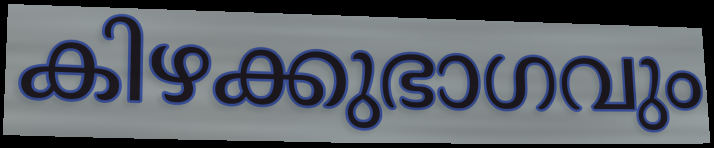
കിഴക്കുഭാഗവും